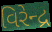
વિરેન્દ્ર